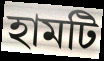
হামটি